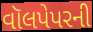
વૉલપેપરની